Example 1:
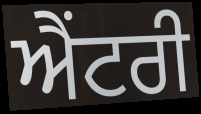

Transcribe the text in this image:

ਐਂਟਰੀ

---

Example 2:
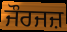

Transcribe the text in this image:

ਜੌਰਜਜ਼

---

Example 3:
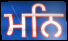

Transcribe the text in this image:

ਮਨਿ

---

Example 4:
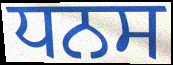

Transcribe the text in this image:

ਧਨਸ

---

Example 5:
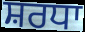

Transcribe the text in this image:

ਸ਼ਰਧਾ